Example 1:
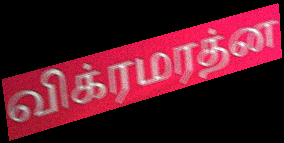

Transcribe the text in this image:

விக்ரமரத்ன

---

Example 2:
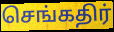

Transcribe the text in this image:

செங்கதிர்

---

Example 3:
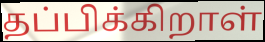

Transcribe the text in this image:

தப்பிக்கிறாள்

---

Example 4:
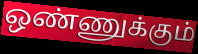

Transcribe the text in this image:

ஒண்ணுக்கும்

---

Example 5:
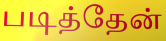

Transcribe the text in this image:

படித்தேன்